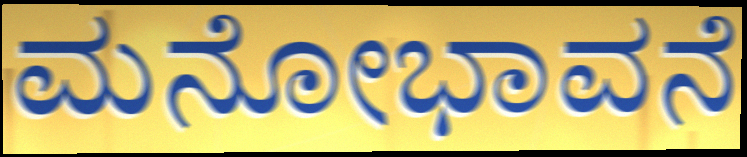
ಮನೋಭಾವನೆ